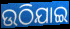
ଉଠିଯାଇ